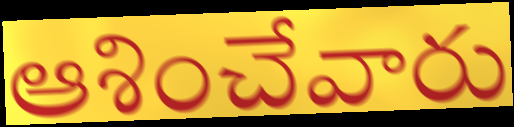
ఆశించేవారు